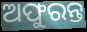
ଅଫୁରନ୍ତ